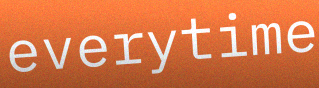
everytime